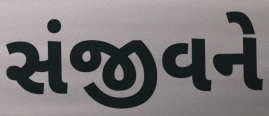
સંજીવને